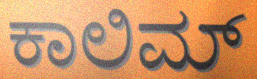
ಕಾಲಿಮ್